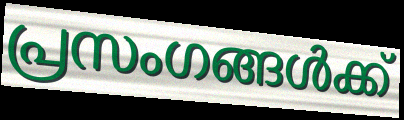
പ്രസംഗങ്ങൾക്ക്